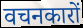
वचनकारों